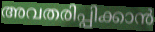
അവതരിപ്പിക്കാൻ